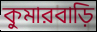
কুমারবাড়ি